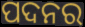
ପଦନର